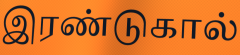
இரண்டுகால்